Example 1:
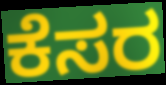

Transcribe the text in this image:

ಕೆಸರ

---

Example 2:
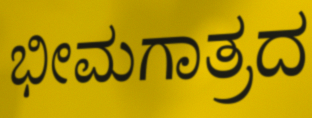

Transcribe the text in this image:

ಭೀಮಗಾತ್ರದ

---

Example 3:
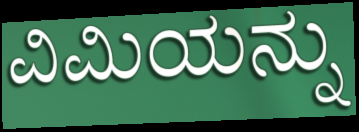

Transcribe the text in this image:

ವಿಮಿಯನ್ನು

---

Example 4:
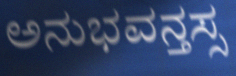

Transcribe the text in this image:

ಅನುಭವನ್ತಸ್ಸ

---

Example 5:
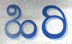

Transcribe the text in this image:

ಹಿರಿ